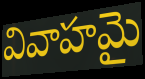
వివాహమై